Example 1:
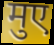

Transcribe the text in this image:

मुए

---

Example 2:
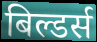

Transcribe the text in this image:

बिल्डर्स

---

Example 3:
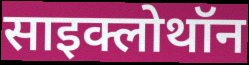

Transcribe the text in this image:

साइक्लोथॉन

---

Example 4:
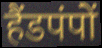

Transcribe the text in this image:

हैंडपंपों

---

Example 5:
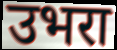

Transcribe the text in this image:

उभरा